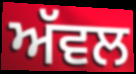
ਅੱਵਲ